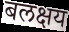
बलक्षय